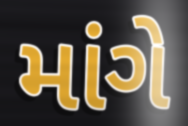
માંગે